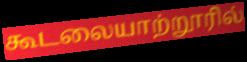
கூடலையாற்றூரில்